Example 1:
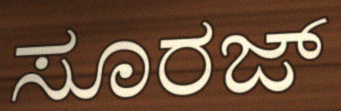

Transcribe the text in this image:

ಸೂರಜ್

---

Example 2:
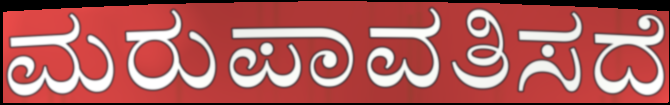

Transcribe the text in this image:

ಮರುಪಾವತಿಸದೆ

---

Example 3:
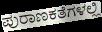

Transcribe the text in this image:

ಪುರಾಣಕತೆಗಳಲ್ಲಿ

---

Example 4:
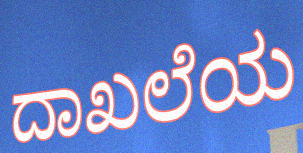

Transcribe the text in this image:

ದಾಖಲೆಯ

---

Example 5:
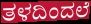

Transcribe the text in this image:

ತಳದಿಂದಲೆ